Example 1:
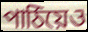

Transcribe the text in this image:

পাঠিয়েও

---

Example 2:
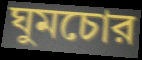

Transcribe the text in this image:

ঘুমচোর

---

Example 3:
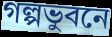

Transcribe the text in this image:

গল্পভুবনে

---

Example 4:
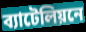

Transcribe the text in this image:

ব্যাটেলিয়নে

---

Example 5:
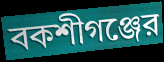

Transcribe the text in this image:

বকশীগঞ্জের